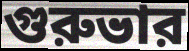
গুরুভার